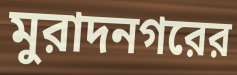
মুরাদনগরের